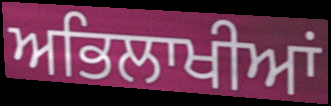
ਅਭਿਲਾਖੀਆਂ